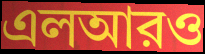
এলআরও